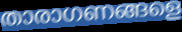
താരാഗണങ്ങളെ